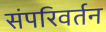
संपरिवर्तन